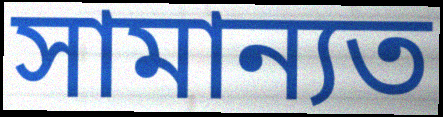
সামান্যত